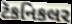
ટૅકનિકલર